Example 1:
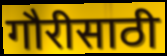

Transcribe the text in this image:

गौरीसाठी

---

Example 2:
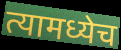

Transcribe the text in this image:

त्यामध्येच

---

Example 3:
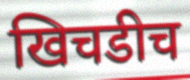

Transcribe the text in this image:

खिचडीच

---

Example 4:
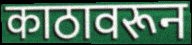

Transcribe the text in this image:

काठावरून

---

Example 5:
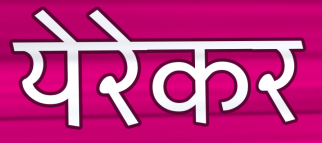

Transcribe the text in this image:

येरेकर